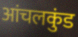
आंचलकुंड